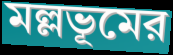
মল্লভূমের